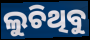
ଲୁଚିଥିବୁ